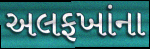
અલફખાંના